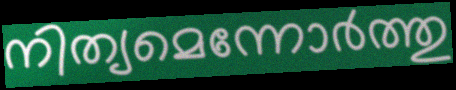
നിത്യമെന്നോർത്തു